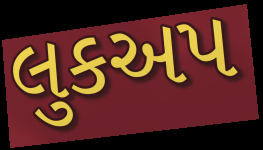
લુકઅપ